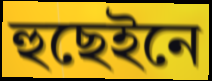
হুছেইনে